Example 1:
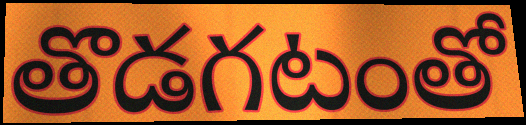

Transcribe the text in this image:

తొడగటంతో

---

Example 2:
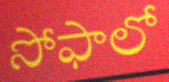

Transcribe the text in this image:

సోఫాలో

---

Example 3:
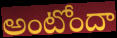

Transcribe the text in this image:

అంటోందా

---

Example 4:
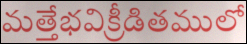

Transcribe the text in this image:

మత్తేభవిక్రీడితములో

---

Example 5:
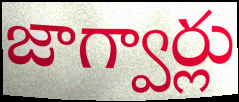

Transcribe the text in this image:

జాగ్వార్లు